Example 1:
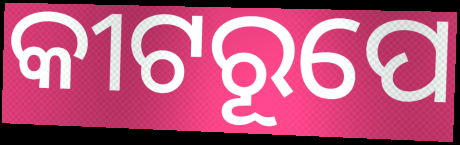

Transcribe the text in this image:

କୀଟରୂପେ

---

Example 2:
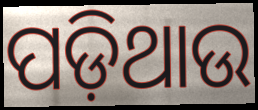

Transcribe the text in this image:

ପଡ଼ିଥାଉ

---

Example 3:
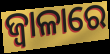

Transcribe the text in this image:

ଜ୍ୱାଳାରେ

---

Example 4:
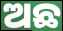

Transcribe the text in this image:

ଅଛ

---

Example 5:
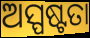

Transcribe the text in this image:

ଅସ୍ପଷ୍ଟତା